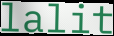
lalit